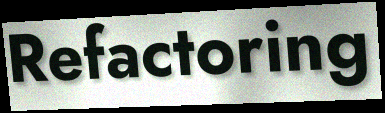
Refactoring